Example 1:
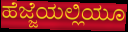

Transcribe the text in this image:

ಹೆಜ್ಜೆಯಲ್ಲಿಯೂ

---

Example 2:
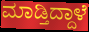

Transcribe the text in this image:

ಮಾಡ್ತಿದ್ದಾಳೆ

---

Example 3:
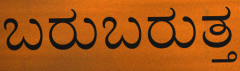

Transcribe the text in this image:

ಬರುಬರುತ್ತ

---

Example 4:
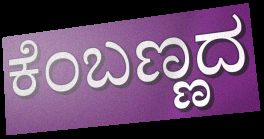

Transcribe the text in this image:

ಕೆಂಬಣ್ಣದ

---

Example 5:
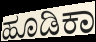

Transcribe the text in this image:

ಹೂಡಿಕಾ